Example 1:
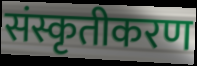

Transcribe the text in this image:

संस्कृतीकरण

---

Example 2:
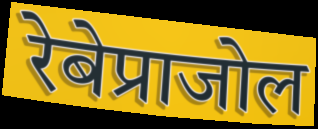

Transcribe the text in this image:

रेबेप्राजोल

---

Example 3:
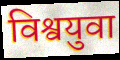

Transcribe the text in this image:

विश्वयुवा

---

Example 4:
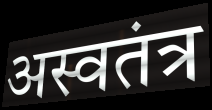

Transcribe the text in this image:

अस्वतंत्र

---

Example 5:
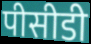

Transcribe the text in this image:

पीसीडी